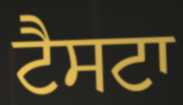
ਟੈਸਟਾ